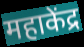
महाकेंद्र